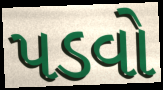
પડવો